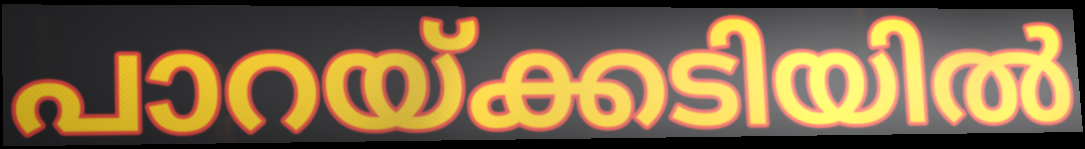
പാറയ്ക്കടിയിൽ